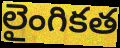
లైంగికత